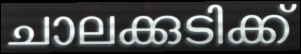
ചാലക്കുടിക്ക്